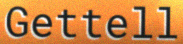
Gettell